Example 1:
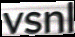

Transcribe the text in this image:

vsnl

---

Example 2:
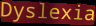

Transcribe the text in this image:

Dyslexia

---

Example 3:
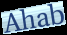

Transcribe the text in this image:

Ahab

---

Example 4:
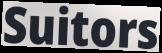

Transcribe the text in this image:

Suitors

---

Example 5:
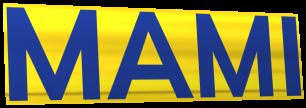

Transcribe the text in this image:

MAMI